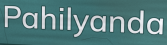
Pahilyanda